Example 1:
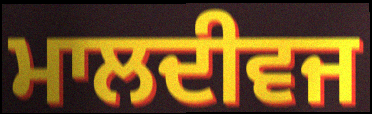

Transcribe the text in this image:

ਮਾਲਦੀਵਜ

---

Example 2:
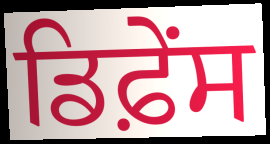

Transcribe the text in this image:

ਡਿਫ਼ੇੰਸ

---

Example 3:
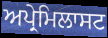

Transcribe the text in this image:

ਅਪ੍ਰੇਮਿਲਾਸਟ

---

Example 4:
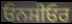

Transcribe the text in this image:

ਓਨਸੀਓਰ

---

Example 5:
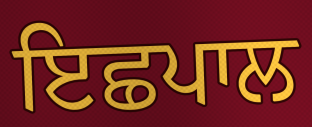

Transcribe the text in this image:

ਇਛਪਾਲ